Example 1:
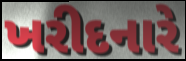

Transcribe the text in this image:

ખરીદનારે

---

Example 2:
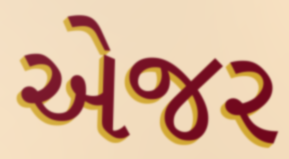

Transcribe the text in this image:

એજર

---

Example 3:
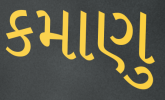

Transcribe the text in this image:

કમાણુ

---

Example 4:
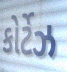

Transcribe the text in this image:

કોર્ટેઝ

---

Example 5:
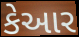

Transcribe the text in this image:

કેઆર